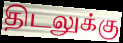
திடலுக்கு